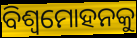
ବିଶ୍ଵମୋହନକୁ